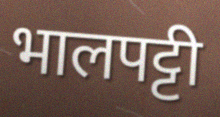
भालपट्टी